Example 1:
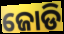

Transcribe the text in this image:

ଜୋଡି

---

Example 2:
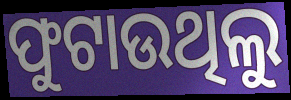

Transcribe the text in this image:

ଫୁଟାଉଥିଲୁ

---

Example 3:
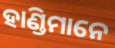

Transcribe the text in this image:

ହାଣ୍ଡିମାନେ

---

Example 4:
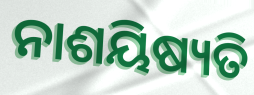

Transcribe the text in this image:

ନାଶୟିଷ୍ୟତି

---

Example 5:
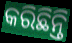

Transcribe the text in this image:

କରିଛିନ୍ତି